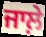
ਜਾਲ਼ੇ